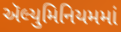
ઍલ્યુમિનિયમમાં